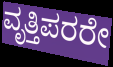
ವೃತ್ತಿಪರರೇ